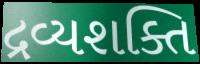
દ્રવ્યશક્તિ